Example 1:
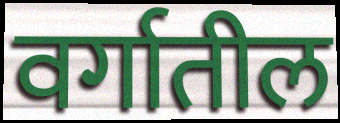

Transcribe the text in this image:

वर्गातील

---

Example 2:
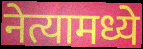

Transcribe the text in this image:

नेत्यामध्ये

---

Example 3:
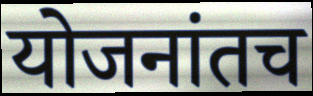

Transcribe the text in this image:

योजनांतच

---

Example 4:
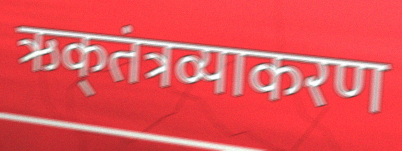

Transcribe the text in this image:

ऋक्‌तंत्रव्याकरण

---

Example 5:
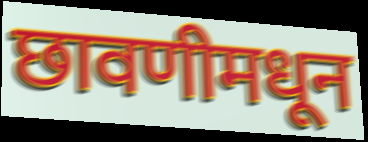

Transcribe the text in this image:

छावणीमधून